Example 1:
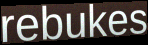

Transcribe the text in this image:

rebukes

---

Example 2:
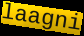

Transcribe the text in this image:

laagni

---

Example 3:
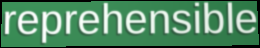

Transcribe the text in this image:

reprehensible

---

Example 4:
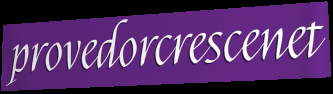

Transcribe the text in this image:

provedorcrescenet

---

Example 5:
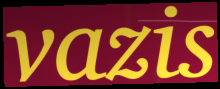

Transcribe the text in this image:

vazis